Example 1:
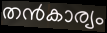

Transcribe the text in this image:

തൻകാര്യം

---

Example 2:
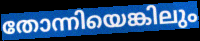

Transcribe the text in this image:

തോന്നിയെങ്കിലും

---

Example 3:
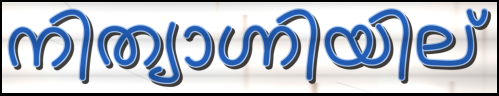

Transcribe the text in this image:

നിത്യാഗ്നിയില്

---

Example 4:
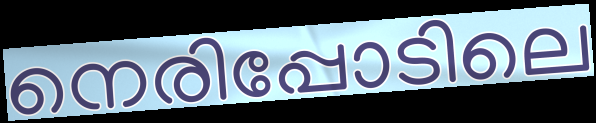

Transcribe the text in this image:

നെരിപ്പോടിലെ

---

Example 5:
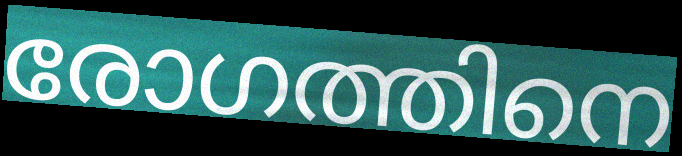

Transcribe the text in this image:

രോഗത്തിനെ